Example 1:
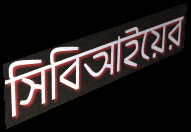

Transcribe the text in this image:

সিবিআইয়ের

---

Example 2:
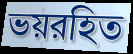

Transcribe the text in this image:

ভয়রহিত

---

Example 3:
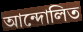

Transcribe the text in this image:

আন্দোলিত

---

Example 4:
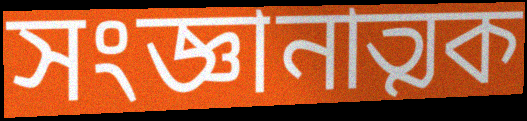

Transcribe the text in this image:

সংজ্ঞানাত্মক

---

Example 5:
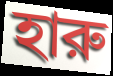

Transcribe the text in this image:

হারু